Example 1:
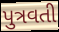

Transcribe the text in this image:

પુત્રવતી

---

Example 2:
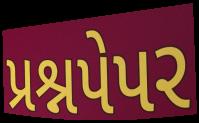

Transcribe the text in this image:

પ્રશ્નપેપર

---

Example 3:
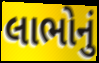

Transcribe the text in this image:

લાભોનું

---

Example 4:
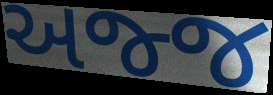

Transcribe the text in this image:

અજ્જ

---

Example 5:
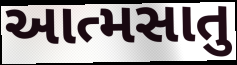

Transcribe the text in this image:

આત્મસાતુ